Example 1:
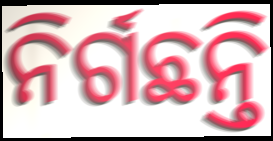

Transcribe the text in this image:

ନିର୍ଗଛନ୍ତି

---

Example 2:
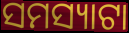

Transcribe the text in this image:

ସମସ୍ୟାଟା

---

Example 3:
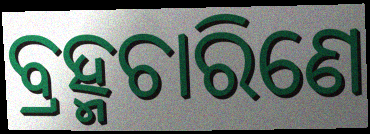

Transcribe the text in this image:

ବ୍ରହ୍ମଚାରିଣେ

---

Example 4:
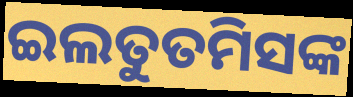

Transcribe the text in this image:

ଇଲତୁତମିସଙ୍କ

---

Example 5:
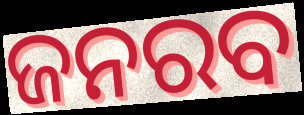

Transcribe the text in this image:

ଜନରବ